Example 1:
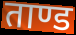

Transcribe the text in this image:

ताण्ड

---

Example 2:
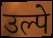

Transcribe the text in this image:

उल्पे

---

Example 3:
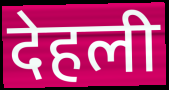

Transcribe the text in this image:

देहली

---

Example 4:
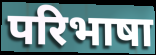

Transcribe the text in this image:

परिभाषा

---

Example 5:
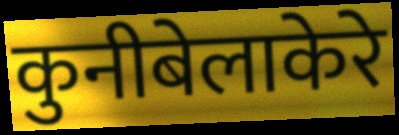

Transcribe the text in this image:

कुनीबेलाकेरे